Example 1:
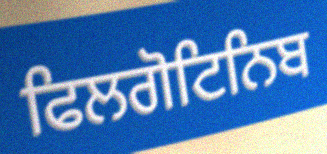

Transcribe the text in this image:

ਫਿਲਗੋਟਿਨਿਬ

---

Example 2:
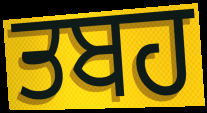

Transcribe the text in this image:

ਤਬਹ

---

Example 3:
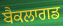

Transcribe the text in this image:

ਬੈਕਲਾਗਡ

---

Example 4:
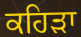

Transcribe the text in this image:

ਕਹਿੜਾ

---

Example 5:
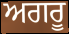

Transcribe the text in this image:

ਅਗਰੂ